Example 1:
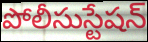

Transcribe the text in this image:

పోలీసుస్టేషన్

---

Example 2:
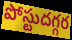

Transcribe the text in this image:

పోస్టుదగ్గర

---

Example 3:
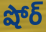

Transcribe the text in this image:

షోర్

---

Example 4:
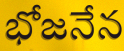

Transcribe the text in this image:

భోజనేన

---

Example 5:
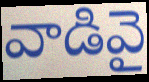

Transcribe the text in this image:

వాడివై